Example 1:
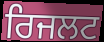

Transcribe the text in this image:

ਰਿਜਲਟ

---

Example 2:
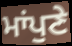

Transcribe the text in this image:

ਮਾਂਪੁਣੇ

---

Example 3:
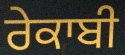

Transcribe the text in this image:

ਰੇਕਾਬੀ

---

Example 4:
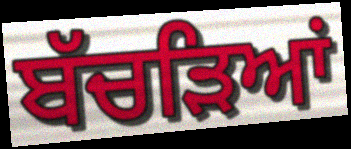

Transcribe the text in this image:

ਬੱਚੜਿਆਂ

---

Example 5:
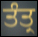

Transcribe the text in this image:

ਤੰਤ੍ਰ